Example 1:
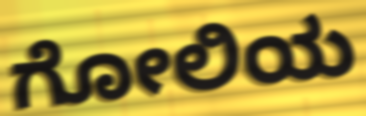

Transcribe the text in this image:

ಗೋಲಿಯ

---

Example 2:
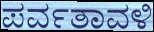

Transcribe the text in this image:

ಪರ್ವತಾವಳಿ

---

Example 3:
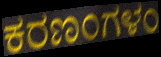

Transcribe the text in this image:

ಕರಣಂಗಳಂ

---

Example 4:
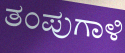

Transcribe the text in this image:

ತಂಪುಗಾಳಿ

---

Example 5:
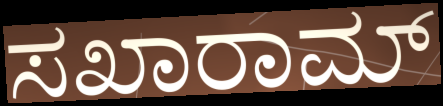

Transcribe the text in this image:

ಸಖಾರಾಮ್